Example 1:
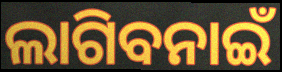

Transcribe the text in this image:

ଲାଗିବନାଇଁ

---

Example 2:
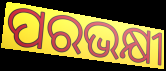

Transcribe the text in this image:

ପରଭକ୍ଷୀ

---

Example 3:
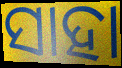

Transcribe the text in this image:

ସାହା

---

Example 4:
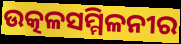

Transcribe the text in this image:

ଉତ୍କଳସମ୍ମିଳନୀର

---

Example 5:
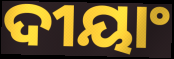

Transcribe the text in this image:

ଦୀୟାଂ